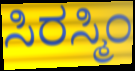
ಸಿರಸ್ಮಿಂ